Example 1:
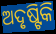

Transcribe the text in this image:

ଅଦୃଷ୍ଟିକି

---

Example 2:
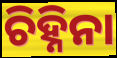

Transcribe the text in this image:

ଚିହ୍ନିନା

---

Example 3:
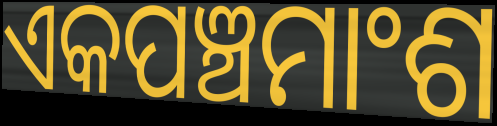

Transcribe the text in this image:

ଏକପଞ୍ଚମାଂଶ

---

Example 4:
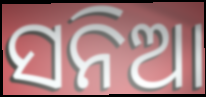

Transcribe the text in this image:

ସନିଆ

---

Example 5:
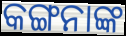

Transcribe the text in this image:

କଙ୍ଗନାଙ୍କ